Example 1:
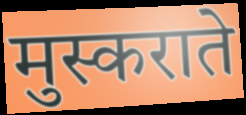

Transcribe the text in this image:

मुस्कराते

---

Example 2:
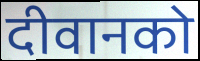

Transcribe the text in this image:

दीवानको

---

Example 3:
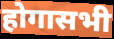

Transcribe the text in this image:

होगासभी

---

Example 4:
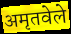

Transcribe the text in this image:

अमृतवेले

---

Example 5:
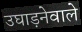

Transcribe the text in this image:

उघाड़नेवाले